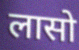
लासो